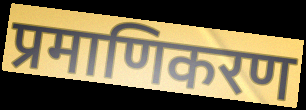
प्रमाणिकरण